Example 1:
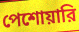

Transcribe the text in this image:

পেশোয়ারি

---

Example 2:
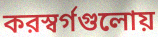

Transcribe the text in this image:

করস্বর্গগুলোয়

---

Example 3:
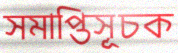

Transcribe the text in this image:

সমাপ্তিসূচক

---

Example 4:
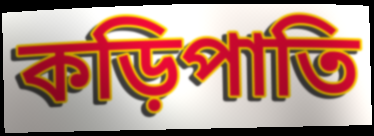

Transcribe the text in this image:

কড়িপাতি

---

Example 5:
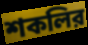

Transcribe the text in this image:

শকলির